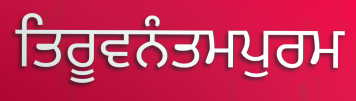
ਤਿਰੂਵਨੰਤਮਪੁਰਮ